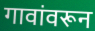
गावांवरून